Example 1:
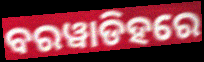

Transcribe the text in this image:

ବରୱାଡିହରେ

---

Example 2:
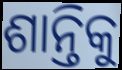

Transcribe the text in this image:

ଶାନ୍ତିକୁ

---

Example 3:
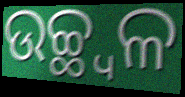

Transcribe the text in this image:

ଉଚ୍ଛ୍ୱଳ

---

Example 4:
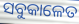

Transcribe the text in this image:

ସବୁକାଳେତ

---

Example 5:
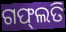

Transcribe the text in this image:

ଗଫ୍‌ଲତି